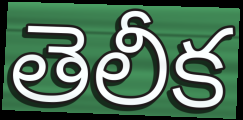
తెలీక